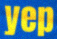
yep